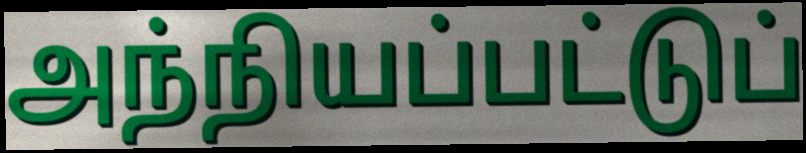
அந்நியப்பட்டுப்